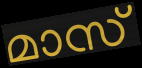
മാസ്